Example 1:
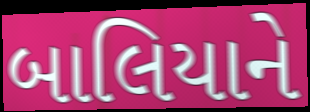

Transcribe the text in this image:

બાલિયાને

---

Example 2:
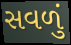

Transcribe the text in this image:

સવળું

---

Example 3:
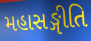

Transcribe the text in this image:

મહાસઙ્ગીતિ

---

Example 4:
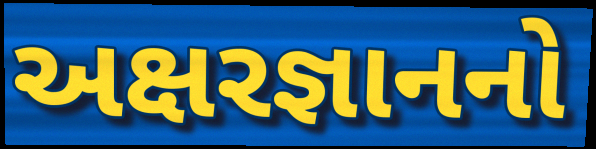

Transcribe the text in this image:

અક્ષરજ્ઞાનનો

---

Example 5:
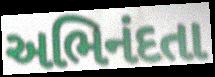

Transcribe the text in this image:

અભિનંદતા